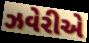
ઝવેરીએ